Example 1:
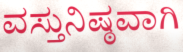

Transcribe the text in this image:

ವಸ್ತುನಿಷ್ಠವಾಗಿ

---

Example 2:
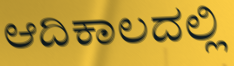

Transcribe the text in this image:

ಆದಿಕಾಲದಲ್ಲಿ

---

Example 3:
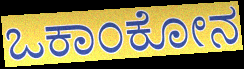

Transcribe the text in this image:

ಒಕಾಂಕೋನ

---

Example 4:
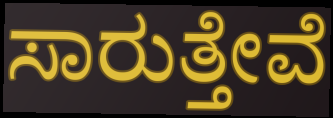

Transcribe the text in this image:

ಸಾರುತ್ತೇವೆ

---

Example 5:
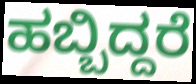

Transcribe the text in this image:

ಹಬ್ಬಿದ್ದರೆ